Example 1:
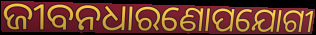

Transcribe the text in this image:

ଜୀବନଧାରଣୋପଯୋଗୀ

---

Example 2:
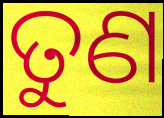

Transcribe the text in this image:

ତୁଣ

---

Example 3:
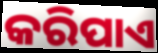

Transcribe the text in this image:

କରିପାଏ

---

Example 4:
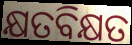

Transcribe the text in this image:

କ୍ଷତବିକ୍ଷତ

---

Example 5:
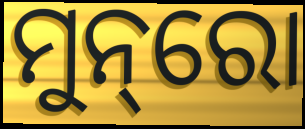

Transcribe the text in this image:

ମୁନ୍‌ରୋ